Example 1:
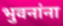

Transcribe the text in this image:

भुवनांना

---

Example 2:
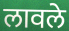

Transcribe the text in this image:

लावले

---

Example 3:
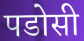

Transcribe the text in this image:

पडोसी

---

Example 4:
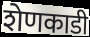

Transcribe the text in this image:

शेणकाडी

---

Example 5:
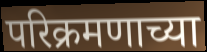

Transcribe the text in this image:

परिक्रमणाच्या